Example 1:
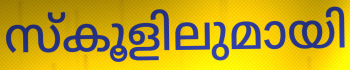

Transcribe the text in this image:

സ്കൂളിലുമായി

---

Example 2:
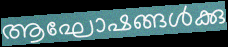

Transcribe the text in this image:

ആഘോഷങ്ങൾക്കു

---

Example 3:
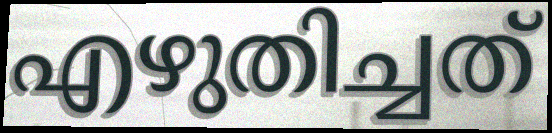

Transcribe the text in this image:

എഴുതിച്ചത്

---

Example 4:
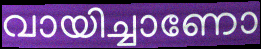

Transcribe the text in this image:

വായിച്ചാണോ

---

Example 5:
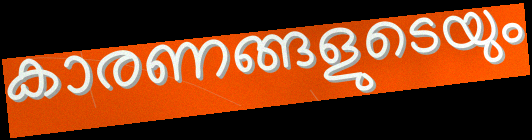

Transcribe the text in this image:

കാരണങ്ങളുടെയും